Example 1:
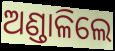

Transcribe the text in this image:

ଅଣ୍ଡାଳିଲେ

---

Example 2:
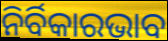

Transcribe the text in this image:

ନିର୍ବିକାରଭାବ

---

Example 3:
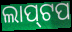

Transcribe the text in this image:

ଲାପ୍‌ଟପ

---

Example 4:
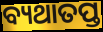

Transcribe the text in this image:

ବ୍ୟଥାତପ୍ତ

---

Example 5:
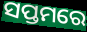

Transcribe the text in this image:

ସପ୍ତମରେ